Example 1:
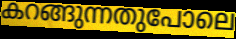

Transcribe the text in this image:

കറങ്ങുന്നതുപോലെ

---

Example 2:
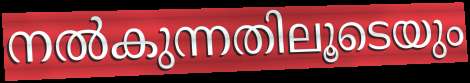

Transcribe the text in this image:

നൽകുന്നതിലൂടെയും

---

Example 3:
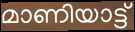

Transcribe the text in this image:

മാണിയാട്ട്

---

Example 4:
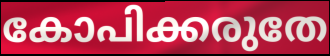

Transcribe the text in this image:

കോപിക്കരുതേ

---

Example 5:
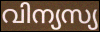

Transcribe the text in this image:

വിന്യസ്യ